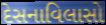
દેસનાવિલાસો